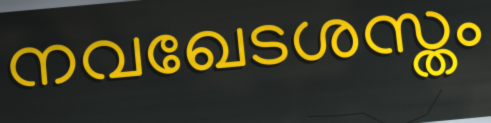
നവഖേടശസ്തം